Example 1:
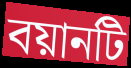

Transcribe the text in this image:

বয়ানটি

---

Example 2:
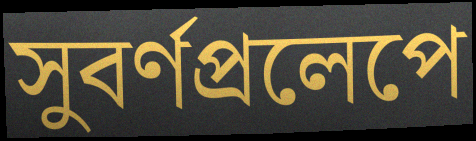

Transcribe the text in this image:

সুবর্ণপ্রলেপে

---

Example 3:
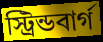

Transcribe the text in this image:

স্ট্রিন্ডবার্গ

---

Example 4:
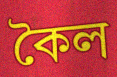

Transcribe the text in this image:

কৈল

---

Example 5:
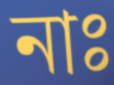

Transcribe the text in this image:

নাঃ